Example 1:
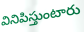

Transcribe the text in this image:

వినిపిస్తుంటారు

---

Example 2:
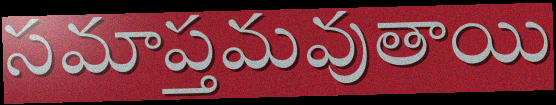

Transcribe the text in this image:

సమాప్తమవుతాయి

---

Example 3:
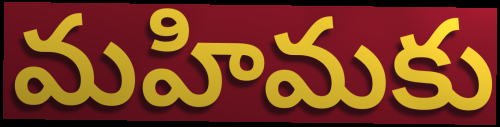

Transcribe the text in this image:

మహిమకు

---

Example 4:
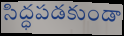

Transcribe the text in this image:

సిద్ధపడకుండా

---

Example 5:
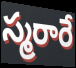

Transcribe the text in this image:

స్మరారే